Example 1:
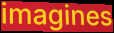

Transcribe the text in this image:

imagines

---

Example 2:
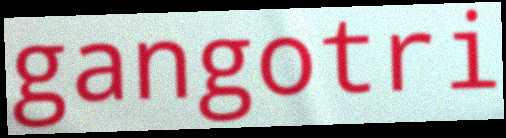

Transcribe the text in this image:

gangotri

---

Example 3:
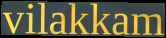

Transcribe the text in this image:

vilakkam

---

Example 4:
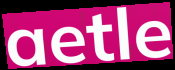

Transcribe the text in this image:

aetle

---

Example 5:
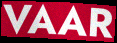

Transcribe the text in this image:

VAAR